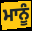
ਮਾਨੂੰ